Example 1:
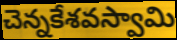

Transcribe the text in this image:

చెన్నకేశవస్వామి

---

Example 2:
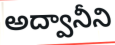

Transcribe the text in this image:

అద్వానీని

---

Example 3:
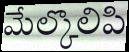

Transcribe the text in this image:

మేల్కొలిపి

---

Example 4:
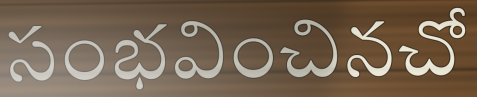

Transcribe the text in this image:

సంభవించినచో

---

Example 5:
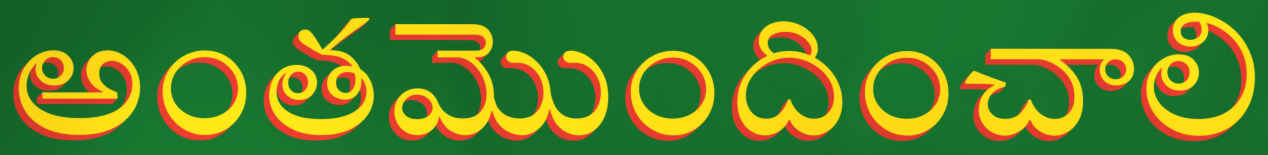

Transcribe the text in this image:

అంతమొందించాలి